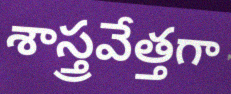
శాస్త్రవేత్తగా